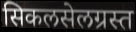
सिकलसेलग्रस्त